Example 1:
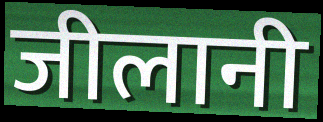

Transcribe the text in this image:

जीलानी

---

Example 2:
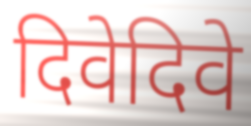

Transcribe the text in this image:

दिवेदिवे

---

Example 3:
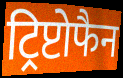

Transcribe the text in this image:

ट्रिप्टोफैन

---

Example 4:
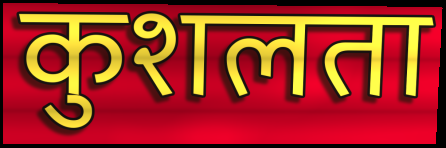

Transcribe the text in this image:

कुशलता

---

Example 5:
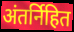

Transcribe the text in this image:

अंतर्निहित